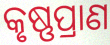
କୃଷ୍ଣପ୍ରାଣ